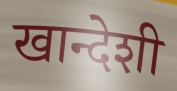
खान्देशी